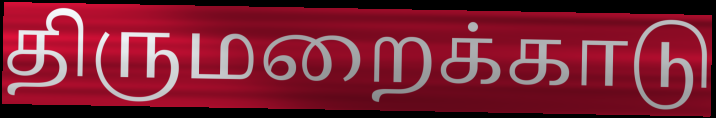
திருமறைக்காடு